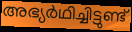
അഭ്യർഥിച്ചിട്ടുണ്ട്